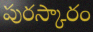
పురస్కారం